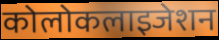
कोलोकलाइजेशन